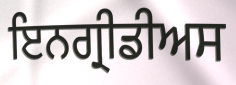
ਇਨਗ੍ਰੀਡੀਅਸ